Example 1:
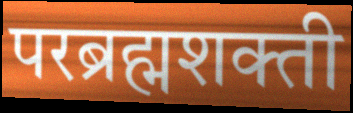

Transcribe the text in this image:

परब्रह्मशक्ती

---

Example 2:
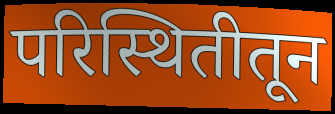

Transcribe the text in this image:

परिस्थितीतून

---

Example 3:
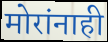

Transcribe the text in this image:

मोरांनाही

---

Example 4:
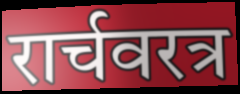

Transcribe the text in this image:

रार्चवरत्र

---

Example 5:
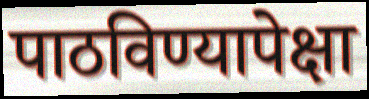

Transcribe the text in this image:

पाठविण्यापेक्षा